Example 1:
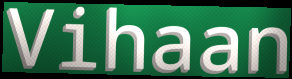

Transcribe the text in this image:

Vihaan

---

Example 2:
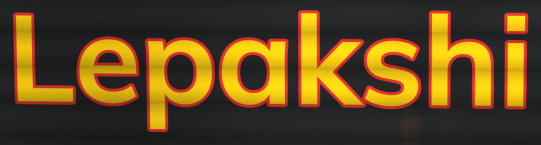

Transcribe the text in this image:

Lepakshi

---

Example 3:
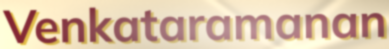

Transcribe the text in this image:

Venkataramanan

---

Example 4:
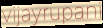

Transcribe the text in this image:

vijayrupani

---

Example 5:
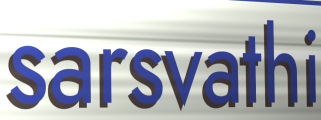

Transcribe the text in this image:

sarsvathi